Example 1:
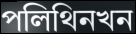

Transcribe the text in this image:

পলিথিনখন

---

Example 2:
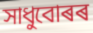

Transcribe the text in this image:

সাধুবোৰৰ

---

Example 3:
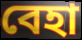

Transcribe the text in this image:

বেহা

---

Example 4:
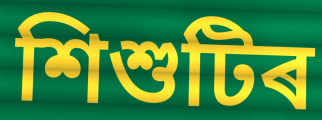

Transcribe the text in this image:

শিশুটিৰ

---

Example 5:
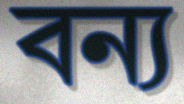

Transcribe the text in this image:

বন্য